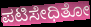
ಪಟಿಸೇಧಿತೋ